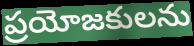
ప్రయోజకులను